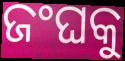
ଜଂଘକୁ